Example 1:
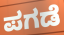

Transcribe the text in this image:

ಪಗಡೆ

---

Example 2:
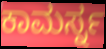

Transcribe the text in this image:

ಕಾಮರ್ಸ್ನ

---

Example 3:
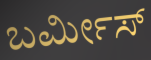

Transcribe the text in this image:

ಬರ್ಮೀಸ್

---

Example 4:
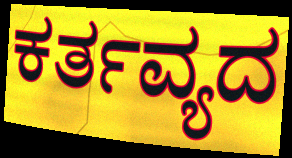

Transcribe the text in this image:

ಕರ್ತವ್ಯದ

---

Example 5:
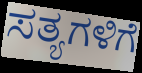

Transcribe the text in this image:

ಸತ್ಯಗಳಿಗೆ